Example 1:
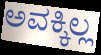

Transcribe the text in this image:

ಅವಕ್ಕಿಲ್ಲ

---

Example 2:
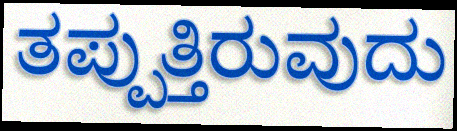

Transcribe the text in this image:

ತಪ್ಪುತ್ತಿರುವುದು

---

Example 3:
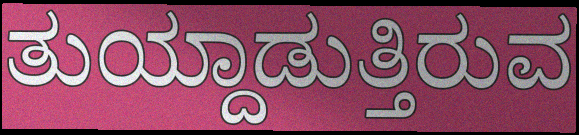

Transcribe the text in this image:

ತುಯ್ದಾಡುತ್ತಿರುವ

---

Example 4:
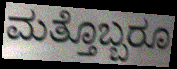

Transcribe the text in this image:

ಮತ್ತೊಬ್ಬರೂ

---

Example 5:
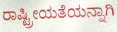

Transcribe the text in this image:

ರಾಷ್ಟ್ರೀಯತೆಯನ್ನಾಗಿ